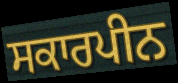
ਸਕਾਰਪੀਨ